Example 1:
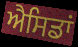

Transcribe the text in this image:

ਐਸਿਡਾਂ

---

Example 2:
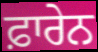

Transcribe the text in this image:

ਫ਼ਾਰੇਨ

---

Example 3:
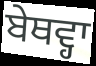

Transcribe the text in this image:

ਬੇਥਵ੍ਹਾ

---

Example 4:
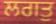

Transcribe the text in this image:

ਲਗਤੁ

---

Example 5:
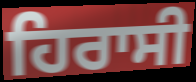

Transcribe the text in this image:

ਹਿਰਾਸੀ